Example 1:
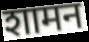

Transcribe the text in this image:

शामन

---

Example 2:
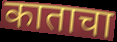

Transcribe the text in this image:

काताचा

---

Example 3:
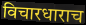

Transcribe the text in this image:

विचारधाराच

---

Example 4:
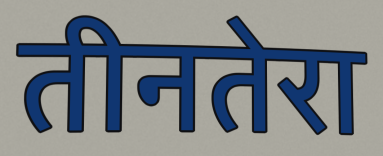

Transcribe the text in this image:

तीनतेरा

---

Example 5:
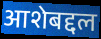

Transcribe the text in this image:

आशेबद्दल